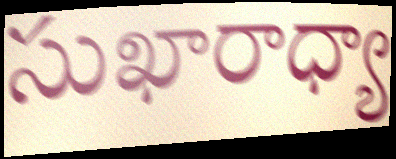
సుఖారాధ్యా